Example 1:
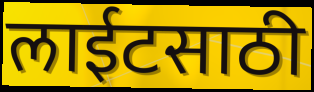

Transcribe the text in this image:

लाईटसाठी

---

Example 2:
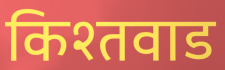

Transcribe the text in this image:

किश्तवाड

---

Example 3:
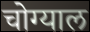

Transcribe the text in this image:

चोग्याल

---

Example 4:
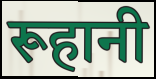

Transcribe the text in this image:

रूहानी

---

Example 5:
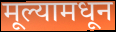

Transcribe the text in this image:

मूल्यामधून